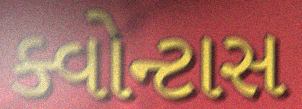
ક્વોન્ટાસ